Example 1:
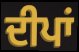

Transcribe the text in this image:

ਦੀਪਾਂ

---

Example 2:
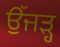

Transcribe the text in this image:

ਉੱਜੜ੍ਹ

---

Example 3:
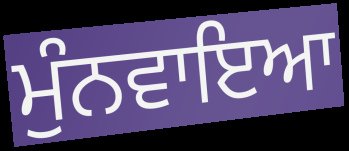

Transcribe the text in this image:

ਮੁੰਨਵਾਇਆ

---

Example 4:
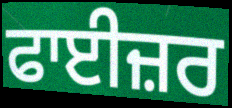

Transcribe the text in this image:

ਫਾਈਜ਼ਰ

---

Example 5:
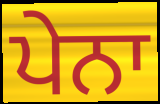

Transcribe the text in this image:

ਪੇਨਾ